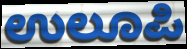
ಉಲೂಪಿ